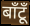
बाँटूँ